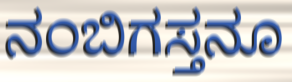
ನಂಬಿಗಸ್ತನೂ